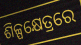
ଶିଳ୍ପକ୍ଷେତ୍ରରେ